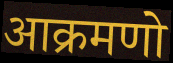
आक्रमणो